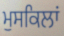
ਮੁਸਕਿਲਾਂ